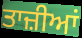
ਤਾਜ਼ੀਆਂ